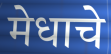
मेधाचे